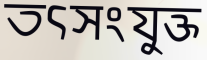
তৎসংযুক্ত